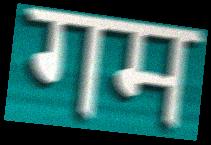
गम